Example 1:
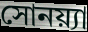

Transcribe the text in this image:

সোনয়্যা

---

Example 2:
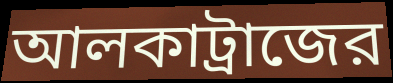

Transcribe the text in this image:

আলকাট্রাজের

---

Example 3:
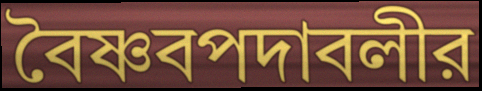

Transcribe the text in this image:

বৈষ্ণবপদাবলীর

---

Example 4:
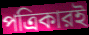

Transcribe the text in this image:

পত্রিকারই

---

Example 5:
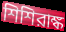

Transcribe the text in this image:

শিশিরাঙ্ক